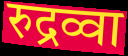
रुद्रव्वा